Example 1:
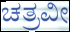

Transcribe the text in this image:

ಚತ್ರವೀ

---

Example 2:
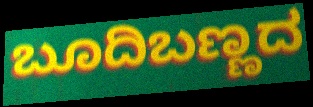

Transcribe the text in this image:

ಬೂದಿಬಣ್ಣದ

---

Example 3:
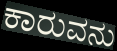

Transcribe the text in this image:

ಕಾರುವನು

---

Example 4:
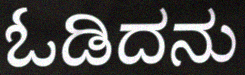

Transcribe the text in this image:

ಓಡಿದನು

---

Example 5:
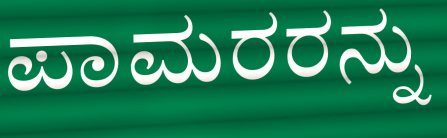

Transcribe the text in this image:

ಪಾಮರರನ್ನು